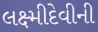
લક્ષ્મીદેવીની